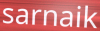
sarnaik